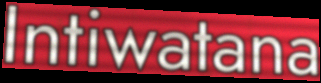
Intiwatana